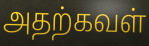
அதற்கவள்